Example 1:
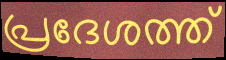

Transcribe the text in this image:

പ്രദേശത്ത്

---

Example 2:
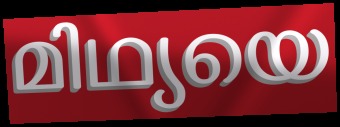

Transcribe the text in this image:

മിഥ്യയെ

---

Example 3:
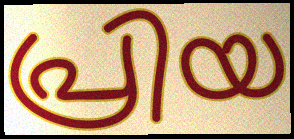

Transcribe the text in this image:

പ്രിയ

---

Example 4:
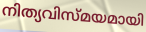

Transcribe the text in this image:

നിത്യവിസ്മയമായി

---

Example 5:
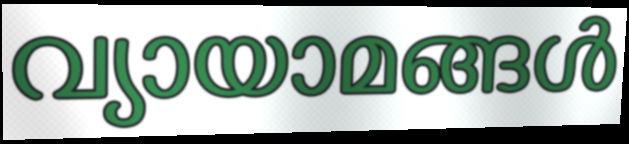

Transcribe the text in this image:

വ്യായാമങ്ങൾ